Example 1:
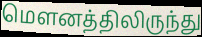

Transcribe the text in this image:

மௌனத்திலிருந்து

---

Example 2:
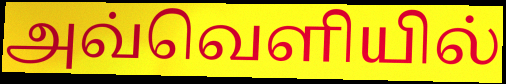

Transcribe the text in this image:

அவ்வெளியில்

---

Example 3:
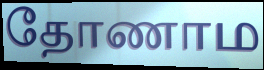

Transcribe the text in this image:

தோணாம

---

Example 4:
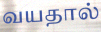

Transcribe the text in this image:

வயதால்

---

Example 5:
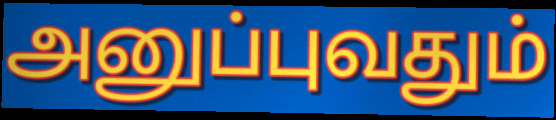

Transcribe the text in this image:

அனுப்புவதும்